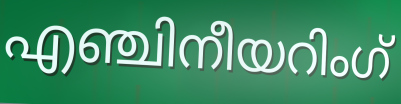
എഞ്ചിനീയറിംഗ്